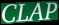
CLAP